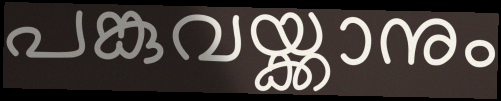
പങ്കുവയ്ക്കാനും